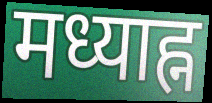
मध्याह्न